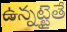
ఉన్నట్టైతే